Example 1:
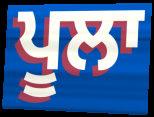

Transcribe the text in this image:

ਪੂਲਾ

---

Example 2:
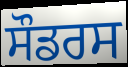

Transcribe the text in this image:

ਸੌਡਰਸ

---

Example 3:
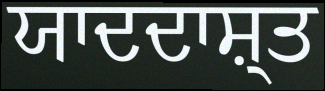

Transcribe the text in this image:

ਯਾਦਦਾਸ਼੍ਤ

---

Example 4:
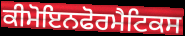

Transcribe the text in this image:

ਕੀਮੋਇਨਫੋਰਮੈਟਿਕਸ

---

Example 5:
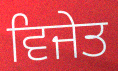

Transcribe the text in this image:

ਵਿਜੇਤ